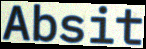
Absit